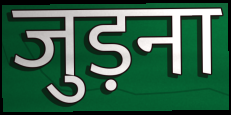
जुड़ना